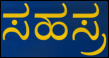
ಸಹಸ್ರ